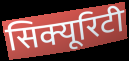
सिक्यूरिटी